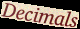
Decimals